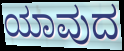
ಯಾವುದ